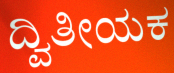
ದ್ವಿತೀಯಕ